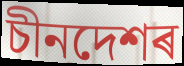
চীনদেশৰ